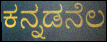
ಕನ್ನಡನೆಲ